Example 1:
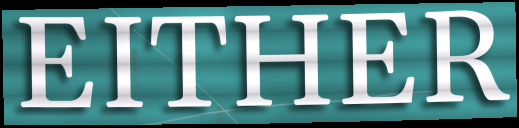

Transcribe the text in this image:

EITHER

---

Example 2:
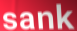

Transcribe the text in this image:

sank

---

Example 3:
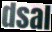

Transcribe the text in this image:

dsal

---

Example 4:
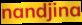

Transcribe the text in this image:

nandjina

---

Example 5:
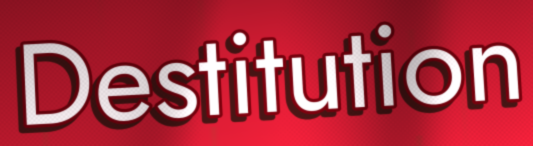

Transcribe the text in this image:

Destitution